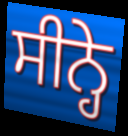
ਸੀਨ੍ਹੇ